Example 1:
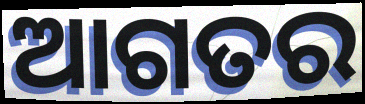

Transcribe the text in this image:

ଆଗତର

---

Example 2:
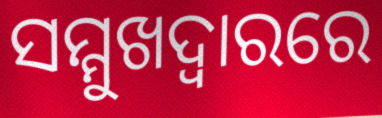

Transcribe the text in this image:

ସମ୍ମୁଖଦ୍ୱାରରେ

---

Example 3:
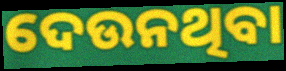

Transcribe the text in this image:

ଦେଉନଥିବା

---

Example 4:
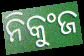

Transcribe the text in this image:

ନିକୁଂଜ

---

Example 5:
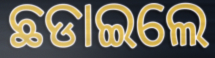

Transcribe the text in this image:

ଛଡାଇଲେ